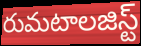
రుమటాలజిస్ట్